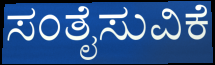
ಸಂತೈಸುವಿಕೆ